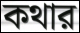
কথার